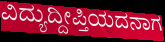
ವಿದ್ಯುದ್ದೀಪ್ತಿಯದನಾಗ